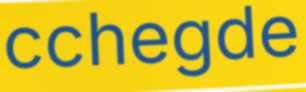
cchegde